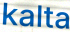
kalta